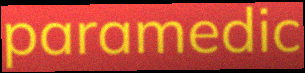
paramedic